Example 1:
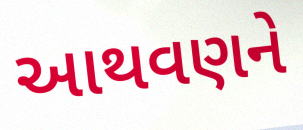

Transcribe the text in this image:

આથવણને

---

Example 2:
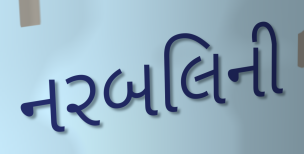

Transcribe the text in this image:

નરબલિની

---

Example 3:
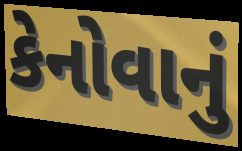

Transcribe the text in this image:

કેનોવાનું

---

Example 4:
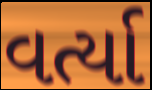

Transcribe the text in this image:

વર્ત્યા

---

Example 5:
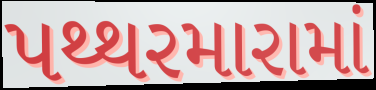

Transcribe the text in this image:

પથ્થરમારામાં